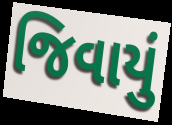
જિવાયું